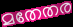
മതേതര